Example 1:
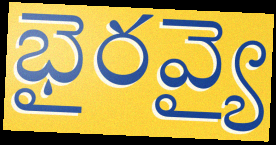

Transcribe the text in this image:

భైరవ్యై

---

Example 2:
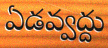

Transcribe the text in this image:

ఏడవ్వద్దు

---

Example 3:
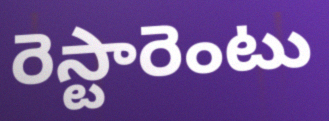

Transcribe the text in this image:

రెస్టారెంటు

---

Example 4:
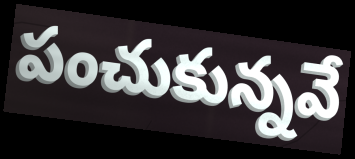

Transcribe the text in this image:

పంచుకున్నవే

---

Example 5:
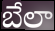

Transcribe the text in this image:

బేలా